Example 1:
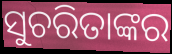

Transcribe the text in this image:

ସୁଚରିତାଙ୍କର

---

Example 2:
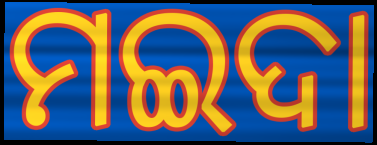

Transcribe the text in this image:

ମଇଦା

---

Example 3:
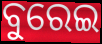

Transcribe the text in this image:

ବୁରେଇ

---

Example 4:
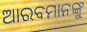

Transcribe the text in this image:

ଆରବମାନଙ୍କୁ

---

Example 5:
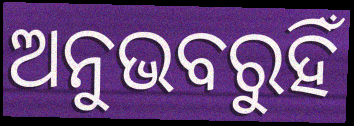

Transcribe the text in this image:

ଅନୁଭବରୁହିଁ